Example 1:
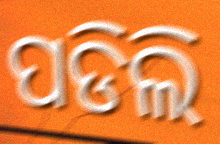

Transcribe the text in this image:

ପଡିଲି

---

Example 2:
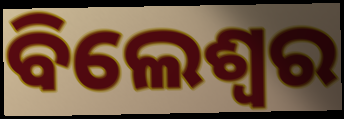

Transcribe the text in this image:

ବିଲେଶ୍ଵର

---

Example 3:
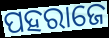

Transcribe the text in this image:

ପହରାଜେ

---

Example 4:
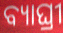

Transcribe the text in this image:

ବ୍ୟାଘ୍ରୀ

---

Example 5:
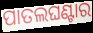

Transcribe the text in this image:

ପାତଲଘଣ୍ଟାର